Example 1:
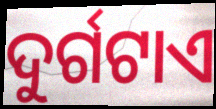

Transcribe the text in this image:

ଦୁର୍ଗଟାଏ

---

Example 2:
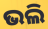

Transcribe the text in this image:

ଭଲି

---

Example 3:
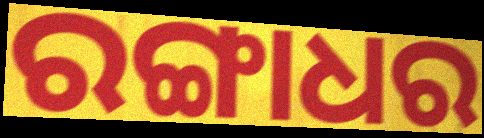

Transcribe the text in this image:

ରଙ୍ଗାଧର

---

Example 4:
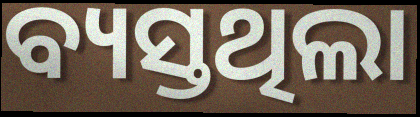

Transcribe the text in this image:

ବ୍ୟସ୍ତଥିଲା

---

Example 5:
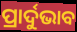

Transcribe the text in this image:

ପ୍ରାର୍ଦୁଭାବ